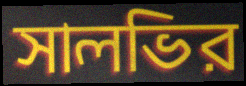
সালভির